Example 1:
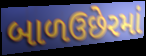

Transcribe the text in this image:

બાળઉછેરમાં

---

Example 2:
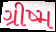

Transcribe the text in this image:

ગ્રીષ્મ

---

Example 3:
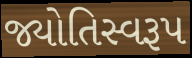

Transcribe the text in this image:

જ્યોતિસ્વરૂપ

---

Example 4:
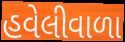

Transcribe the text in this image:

હવેલીવાળા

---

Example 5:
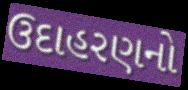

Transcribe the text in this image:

ઉદાહરણનો